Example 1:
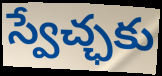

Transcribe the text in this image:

స్వేచ్ఛకు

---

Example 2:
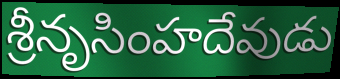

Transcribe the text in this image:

శ్రీనృసింహదేవుడు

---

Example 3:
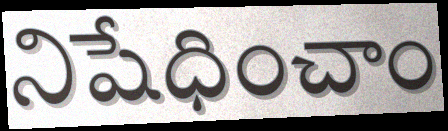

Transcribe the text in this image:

నిషేధించాం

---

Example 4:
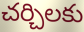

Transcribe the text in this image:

చర్చిలకు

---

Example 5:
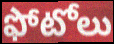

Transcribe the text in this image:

ఫోటోలు